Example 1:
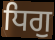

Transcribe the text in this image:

ਧਿਗੁ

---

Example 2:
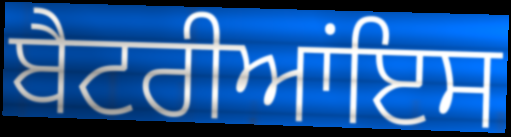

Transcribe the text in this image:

ਬੈਟਰੀਆਂਇਸ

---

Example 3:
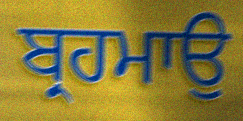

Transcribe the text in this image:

ਬ੍ਰਹਮਾਉ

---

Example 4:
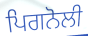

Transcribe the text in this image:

ਪਿਗਨੋਲੀ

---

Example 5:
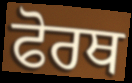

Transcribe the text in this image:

ਫੋਰਥ